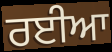
ਰਈਆ